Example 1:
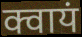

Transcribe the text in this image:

क्वायं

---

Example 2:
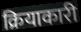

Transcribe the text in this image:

क्रियाकारी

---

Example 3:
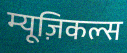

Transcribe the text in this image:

म्यूज़िकल्स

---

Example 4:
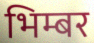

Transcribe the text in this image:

भिम्बर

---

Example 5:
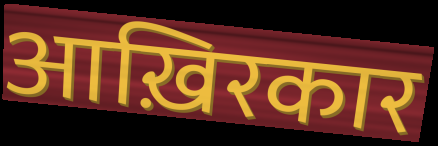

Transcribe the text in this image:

आख़िरकार